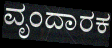
ವೃಂದಾರಕ